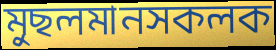
মুছলমানসকলক